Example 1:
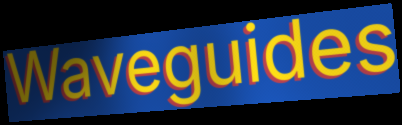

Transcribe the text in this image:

Waveguides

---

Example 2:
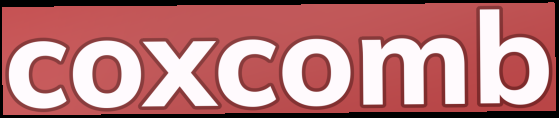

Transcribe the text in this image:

coxcomb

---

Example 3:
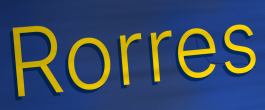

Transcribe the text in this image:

Rorres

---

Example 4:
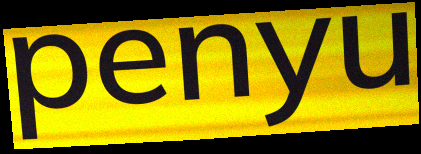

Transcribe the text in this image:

penyu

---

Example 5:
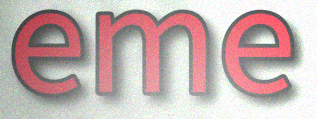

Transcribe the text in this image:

eme